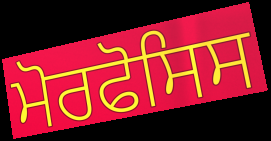
ਮੋਰਫੋਸਿਸ